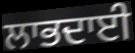
ਲਾਭਦਾਈ